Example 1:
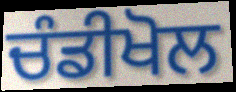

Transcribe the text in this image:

ਚੰਡੀਖੋਲ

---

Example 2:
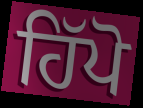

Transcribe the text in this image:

ਹਿੱਪੋ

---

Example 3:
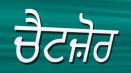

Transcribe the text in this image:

ਚੈਟਜ਼ੋਰ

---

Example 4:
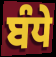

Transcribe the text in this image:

ਬੰਧੇ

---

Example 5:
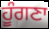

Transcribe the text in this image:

ਹੂੰਗਣਾ